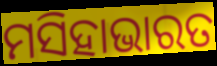
ମସିହାଭାରତ